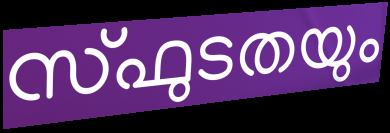
സ്ഫുടതയും